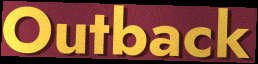
Outback